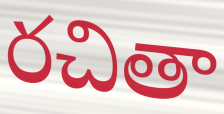
రచితా